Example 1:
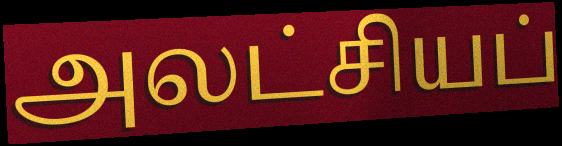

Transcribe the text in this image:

அலட்சியப்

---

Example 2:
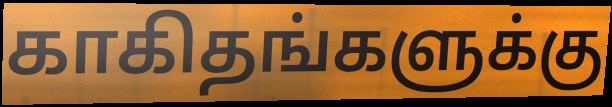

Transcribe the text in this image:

காகிதங்களுக்கு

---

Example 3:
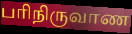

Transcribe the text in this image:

பரிநிருவாண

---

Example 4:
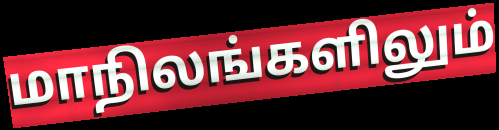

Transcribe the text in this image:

மாநிலங்களிலும்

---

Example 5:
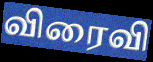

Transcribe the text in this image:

விரைவி